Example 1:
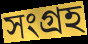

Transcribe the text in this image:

সংগ্ৰহ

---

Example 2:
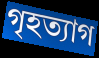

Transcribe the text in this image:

গৃহত্যাগ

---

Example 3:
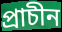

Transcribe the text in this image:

প্ৰাচীন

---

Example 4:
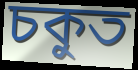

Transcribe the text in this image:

চকুত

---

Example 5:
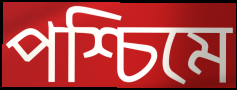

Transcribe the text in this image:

পশ্চিমে